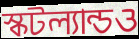
স্কটল্যান্ডও